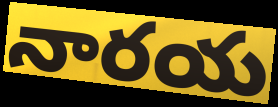
నారయ